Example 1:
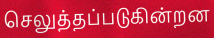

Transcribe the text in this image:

செலுத்தப்படுகின்றன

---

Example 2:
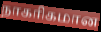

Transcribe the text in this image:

நாகரிகமான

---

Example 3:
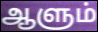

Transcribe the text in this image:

ஆளும்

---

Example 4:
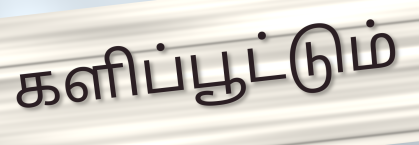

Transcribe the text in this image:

களிப்பூட்டும்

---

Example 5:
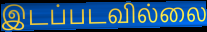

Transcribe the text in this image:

இடப்படவில்லை